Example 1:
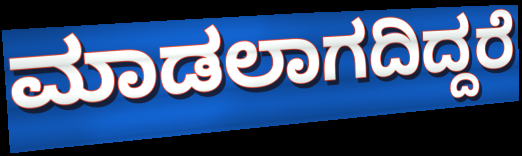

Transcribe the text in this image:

ಮಾಡಲಾಗದಿದ್ದರೆ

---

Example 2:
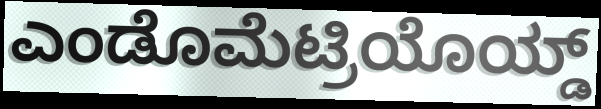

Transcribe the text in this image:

ಎಂಡೊಮೆಟ್ರಿಯೊಯ್ಡ್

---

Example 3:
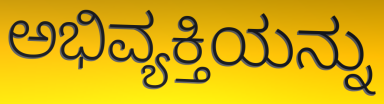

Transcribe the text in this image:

ಅಭಿವ್ಯಕ್ತಿಯನ್ನು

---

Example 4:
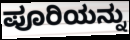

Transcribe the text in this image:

ಪೂರಿಯನ್ನು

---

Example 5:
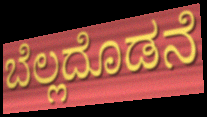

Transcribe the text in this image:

ಬೆಲ್ಲದೊಡನೆ